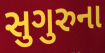
સુગુરુના